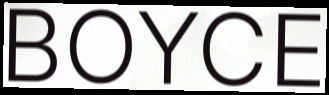
BOYCE